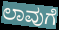
ಲಾವುಗೆ